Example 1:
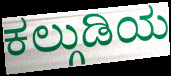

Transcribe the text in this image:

ಕಲ್ಗುಡಿಯ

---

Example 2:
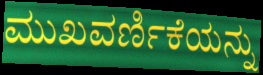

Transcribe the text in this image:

ಮುಖವರ್ಣಿಕೆಯನ್ನು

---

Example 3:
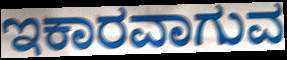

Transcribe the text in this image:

ಇಕಾರವಾಗುವ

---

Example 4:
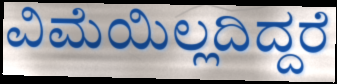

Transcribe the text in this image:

ವಿಮೆಯಿಲ್ಲದಿದ್ದರೆ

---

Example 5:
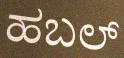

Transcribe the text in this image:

ಹಬಲ್